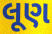
લૂણ